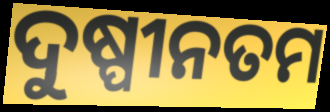
ଦୁଷ୍ପୀନତମ